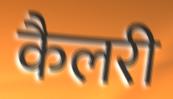
कैलरी